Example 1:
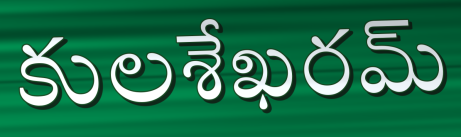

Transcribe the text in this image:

కులశేఖరమ్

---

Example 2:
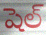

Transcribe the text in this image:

షెల్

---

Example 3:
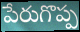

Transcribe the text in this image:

పేరుగొప్ప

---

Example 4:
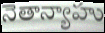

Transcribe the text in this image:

నెతాన్యాహు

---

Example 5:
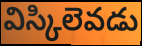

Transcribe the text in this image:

విస్కిలెవడు